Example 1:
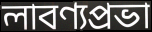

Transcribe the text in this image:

লাবণ্যপ্রভা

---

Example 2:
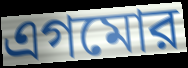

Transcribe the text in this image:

এগমোর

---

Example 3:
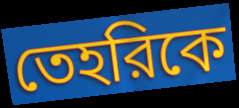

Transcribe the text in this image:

তেহরিকে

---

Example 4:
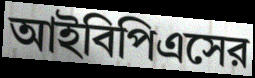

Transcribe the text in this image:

আইবিপিএসের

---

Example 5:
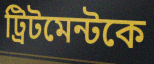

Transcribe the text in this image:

ট্রিটমেন্টকে